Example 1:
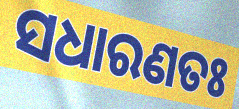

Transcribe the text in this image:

ସଧାରଣତଃ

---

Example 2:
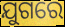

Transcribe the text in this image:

ଯୁଗରେ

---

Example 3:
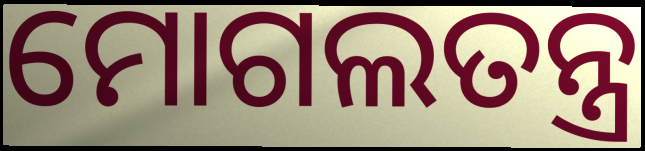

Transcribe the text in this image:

ମୋଗଲତନ୍ତ୍ର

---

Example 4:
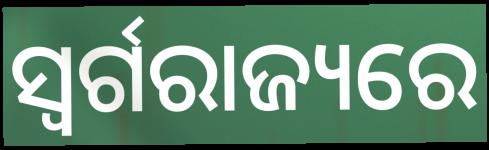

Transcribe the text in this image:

ସ୍ୱର୍ଗରାଜ୍ୟରେ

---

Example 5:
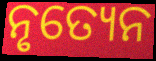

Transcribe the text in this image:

ନୃତ୍ୟେନ